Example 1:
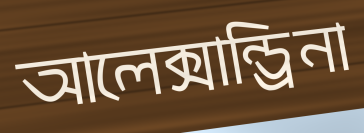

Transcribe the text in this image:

আলেক্সান্ড্রিনা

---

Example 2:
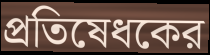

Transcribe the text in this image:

প্রতিষেধকের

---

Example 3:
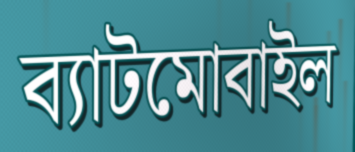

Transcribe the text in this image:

ব্যাটমোবাইল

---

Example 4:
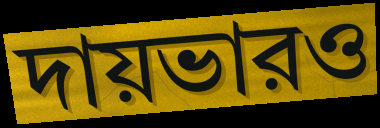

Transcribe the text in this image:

দায়ভারও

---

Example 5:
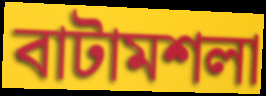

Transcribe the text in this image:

বাটামশলা